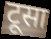
टूसा